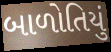
બાળોતિયું